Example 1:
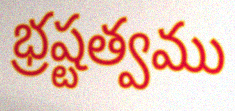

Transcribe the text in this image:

భ్రష్టత్వము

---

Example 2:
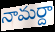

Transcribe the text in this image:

నామర్దా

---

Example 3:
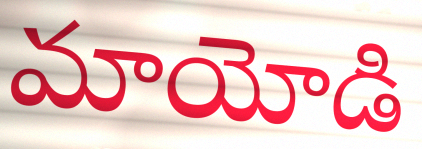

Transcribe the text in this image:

మాయోడి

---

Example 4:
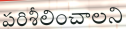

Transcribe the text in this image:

పరిశీలించాలని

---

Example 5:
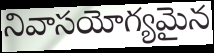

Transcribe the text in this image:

నివాసయోగ్యమైన